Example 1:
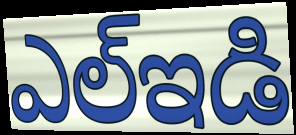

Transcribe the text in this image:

ఎల్ఇడి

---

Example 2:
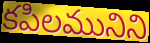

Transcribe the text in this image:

కపిలమునిని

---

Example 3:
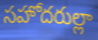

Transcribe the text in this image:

సహోదరుల్లా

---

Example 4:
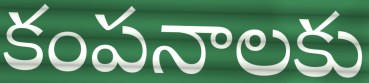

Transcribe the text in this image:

కంపనాలకు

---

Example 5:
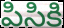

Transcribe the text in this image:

పిసికి